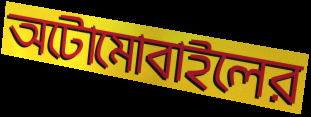
অটোমোবাইলের